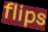
flips